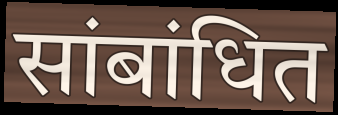
सांबांधित